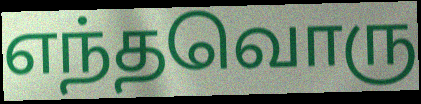
எந்தவொரு